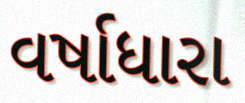
વર્ષાધારા